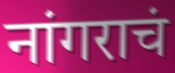
नांगराचं